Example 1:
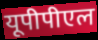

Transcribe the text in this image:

यूपीपीएल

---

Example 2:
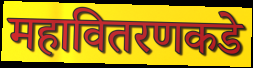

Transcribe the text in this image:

महावितरणकडे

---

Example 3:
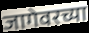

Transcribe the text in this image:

जागेवरच्या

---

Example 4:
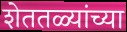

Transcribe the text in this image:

शेततळ्यांच्या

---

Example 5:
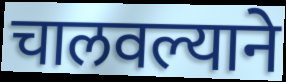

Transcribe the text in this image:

चालवल्याने